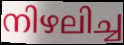
നിഴലിച്ച